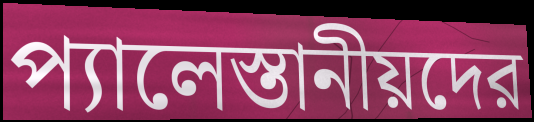
প্যালেস্তানীয়দের